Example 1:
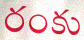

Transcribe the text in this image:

రంకు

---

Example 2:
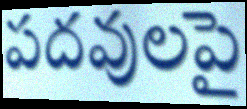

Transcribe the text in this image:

పదవులపై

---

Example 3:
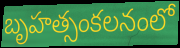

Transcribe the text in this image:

బృహత్సంకలనంలో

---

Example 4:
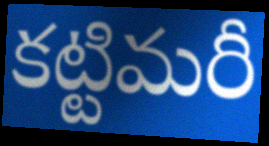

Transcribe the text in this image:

కట్టిమరీ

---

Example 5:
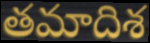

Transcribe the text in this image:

తమాదిశ